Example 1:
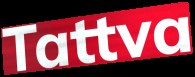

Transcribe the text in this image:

Tattva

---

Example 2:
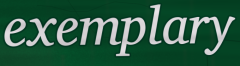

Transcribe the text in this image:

exemplary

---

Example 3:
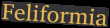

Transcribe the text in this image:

Feliformia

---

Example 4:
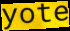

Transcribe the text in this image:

yote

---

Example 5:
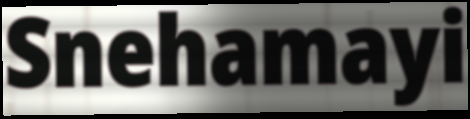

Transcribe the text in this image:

Snehamayi